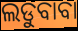
ଲଡୁବାବା